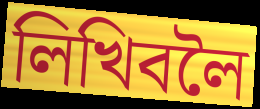
লিখিবলৈ